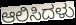
ಆಲಿಸಿದಳು